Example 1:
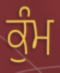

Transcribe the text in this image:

ਕੁੰਮ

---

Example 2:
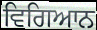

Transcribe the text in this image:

ਵਿਗਿਆਨ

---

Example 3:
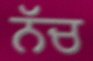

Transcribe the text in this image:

ਨੱਚ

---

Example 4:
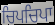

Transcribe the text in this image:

ਚਿਪਚਿਪਾ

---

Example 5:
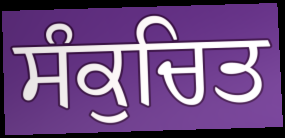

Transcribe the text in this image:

ਸੰਕੁਚਿਤ